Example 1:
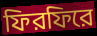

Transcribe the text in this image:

ফিরফিরে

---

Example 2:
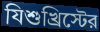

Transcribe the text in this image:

যিশুখ্রিস্টের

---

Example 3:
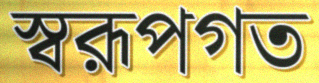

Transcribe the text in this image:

স্বরূপগত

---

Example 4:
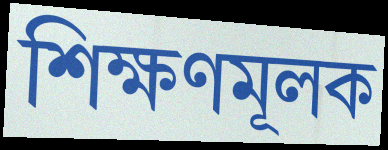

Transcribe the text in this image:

শিক্ষণমূলক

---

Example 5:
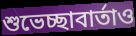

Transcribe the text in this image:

শুভেচ্ছাবার্তাও